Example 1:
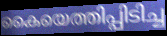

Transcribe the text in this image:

കൈയെത്തിപ്പിടിച്ച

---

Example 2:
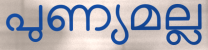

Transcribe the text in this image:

പുണ്യമല്ല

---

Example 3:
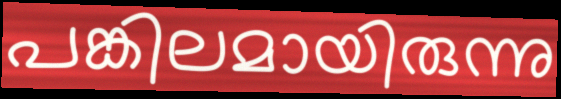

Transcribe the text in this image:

പങ്കിലമായിരുന്നു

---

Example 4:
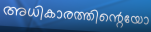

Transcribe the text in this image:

അധികാരത്തിന്റെയോ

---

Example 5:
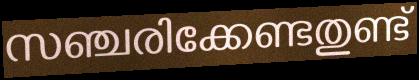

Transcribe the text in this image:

സഞ്ചരിക്കേണ്ടതുണ്ട്